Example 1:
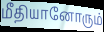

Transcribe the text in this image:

மீதியானோரும்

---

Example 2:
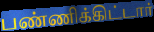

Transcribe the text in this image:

பண்ணிக்கிட்டார்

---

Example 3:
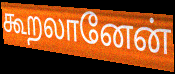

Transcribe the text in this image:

கூறலானேன்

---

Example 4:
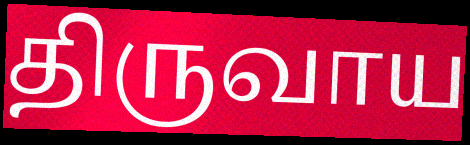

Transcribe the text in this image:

திருவாய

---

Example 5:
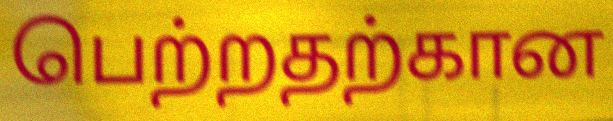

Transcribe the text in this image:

பெற்றதற்கான